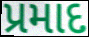
પ્રમાદ